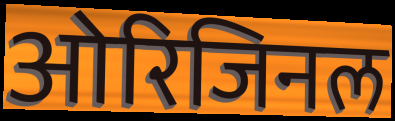
ओरिजिनल